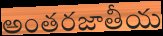
అంతరజాతీయ